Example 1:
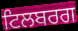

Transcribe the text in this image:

ਟਿਲਬਰਗ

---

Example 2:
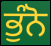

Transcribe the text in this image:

ਭੁੰਨੋ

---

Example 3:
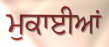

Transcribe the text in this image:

ਮੁਕਾਈਆਂ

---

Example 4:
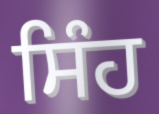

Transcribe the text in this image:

ਸਿੰਹ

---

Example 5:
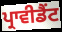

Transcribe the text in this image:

ਪ੍ਰਾਵੀਡੈਂਟ